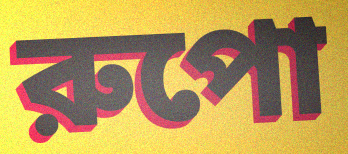
রুপো